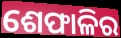
ଶେଫାଳିର